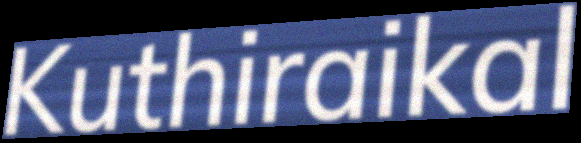
Kuthiraikal